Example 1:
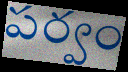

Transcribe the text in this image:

పర్వం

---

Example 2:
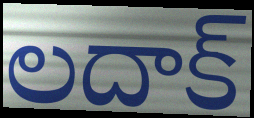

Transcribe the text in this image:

లదాక్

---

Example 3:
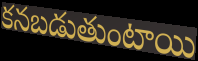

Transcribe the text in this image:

కనబడుతుంటాయి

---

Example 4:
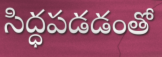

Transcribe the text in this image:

సిద్ధపడడంతో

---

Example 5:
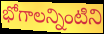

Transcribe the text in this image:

భోగాలన్నింటిని